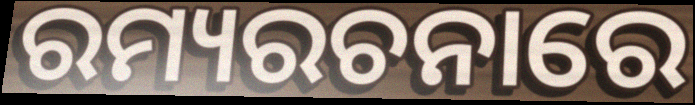
ରମ୍ୟରଚନାରେ